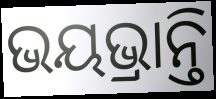
ଭୟଭ୍ରାନ୍ତି